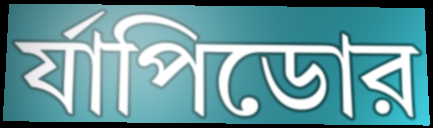
র্যাপিডোর